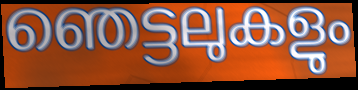
ഞെട്ടലുകളും